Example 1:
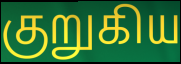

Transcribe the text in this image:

குறுகிய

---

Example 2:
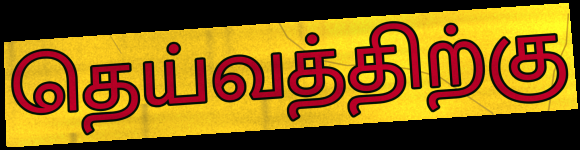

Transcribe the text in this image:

தெய்வத்திற்கு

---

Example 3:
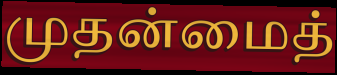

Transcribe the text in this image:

முதன்மைத்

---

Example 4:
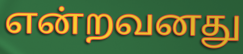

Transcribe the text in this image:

என்றவனது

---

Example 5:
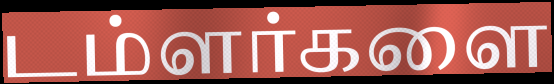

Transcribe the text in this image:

டம்ளர்களை